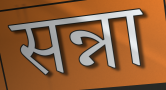
सन्ना